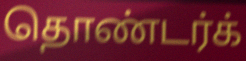
தொண்டர்க்